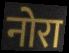
नोरा